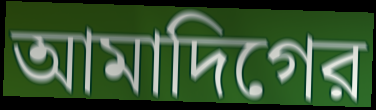
আমাদিগের